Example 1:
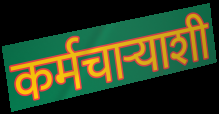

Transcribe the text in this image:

कर्मचाऱ्याशी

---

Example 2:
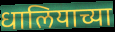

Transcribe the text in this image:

धालियाच्या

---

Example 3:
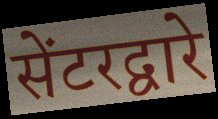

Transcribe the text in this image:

सेंटरद्वारे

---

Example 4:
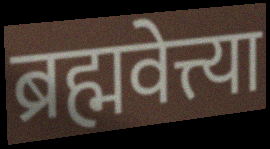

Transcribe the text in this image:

ब्रह्मवेत्त्या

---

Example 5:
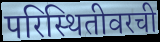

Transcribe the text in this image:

परिस्थितीवरची